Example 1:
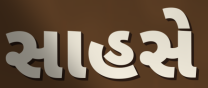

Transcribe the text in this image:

સાહસે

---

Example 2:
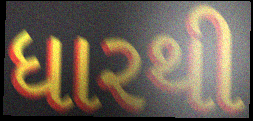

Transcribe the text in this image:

ધારથી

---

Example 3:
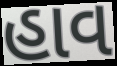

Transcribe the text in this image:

હાવ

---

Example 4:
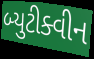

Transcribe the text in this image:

બ્યુટીક્વીન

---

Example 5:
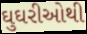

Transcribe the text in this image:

ઘુઘરીઓથી